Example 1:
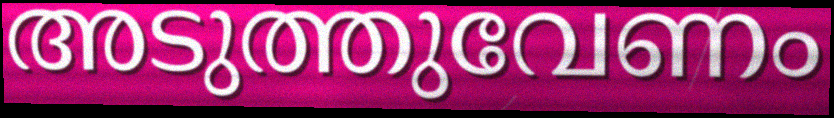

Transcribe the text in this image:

അടുത്തുവേണം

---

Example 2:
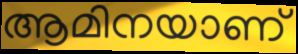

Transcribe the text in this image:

ആമിനയാണ്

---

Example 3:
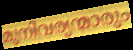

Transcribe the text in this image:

മുനിവര്യന്മാരും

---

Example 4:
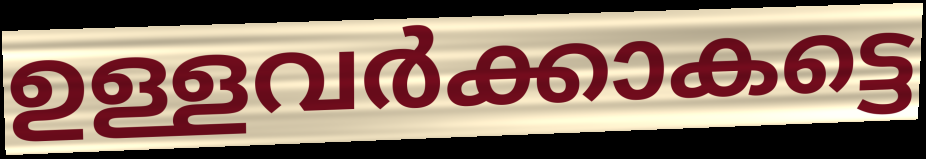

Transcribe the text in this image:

ഉള്ളവർക്കാകട്ടെ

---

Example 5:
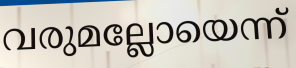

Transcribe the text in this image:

വരുമല്ലോയെന്ന്